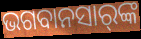
ଭଗବାନସାର୍‌ଙ୍କ